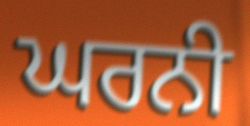
ਘਰਨੀ